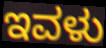
ಇವಳು